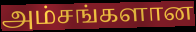
அம்சங்களான